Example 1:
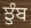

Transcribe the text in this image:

ਝੁੰਬ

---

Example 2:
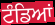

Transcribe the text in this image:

ਟੰਡਿਆਂ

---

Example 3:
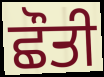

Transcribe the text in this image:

ਛੌਤੀ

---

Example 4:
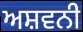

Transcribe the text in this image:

ਅਸ਼ਵਨੀ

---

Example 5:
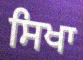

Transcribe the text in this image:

ਸਿਖਾ